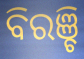
ବିରଞ୍ଚି